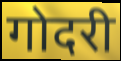
गोदरी